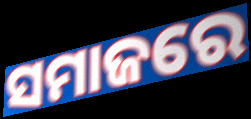
ସମାଜରେ